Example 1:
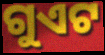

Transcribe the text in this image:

ଗୁଏଟ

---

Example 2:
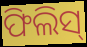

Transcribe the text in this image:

ଫିଲିସ୍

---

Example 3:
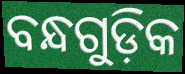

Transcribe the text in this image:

ବନ୍ଧଗୁଡ଼ିକ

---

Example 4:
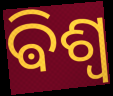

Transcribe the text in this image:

ଵିଶ୍ୱ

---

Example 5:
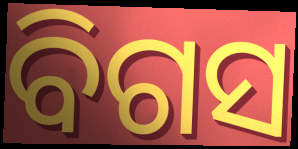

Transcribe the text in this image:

ବିଗସ